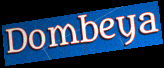
Dombeya